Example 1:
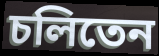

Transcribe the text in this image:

চলিতেন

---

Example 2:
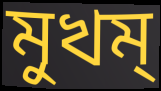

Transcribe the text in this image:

মুখম্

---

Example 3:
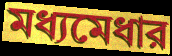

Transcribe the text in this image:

মধ্যমেধার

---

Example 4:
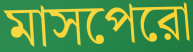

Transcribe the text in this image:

মাসপেরো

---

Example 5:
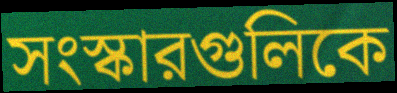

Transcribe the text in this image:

সংস্কারগুলিকে